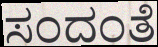
ಸಂದಂತೆ